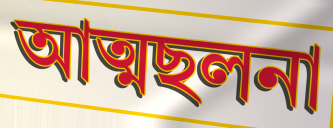
আত্মছলনা